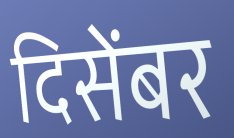
दिसेंबर